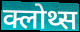
क्लोथ्स